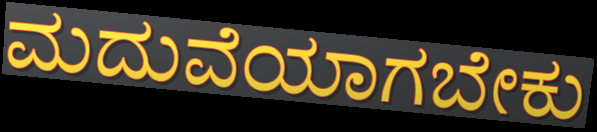
ಮದುವೆಯಾಗಬೇಕು